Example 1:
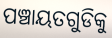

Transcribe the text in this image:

ପଞ୍ଚାୟତଗୁଡିକୁ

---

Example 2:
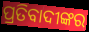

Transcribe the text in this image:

ପ୍ରତିବାଦୀଙ୍କର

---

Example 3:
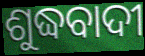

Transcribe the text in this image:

ଶୁଦ୍ଧବାଦୀ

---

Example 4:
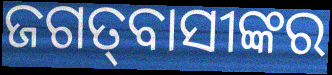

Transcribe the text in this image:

ଜଗତ୍‍ବାସୀଙ୍କର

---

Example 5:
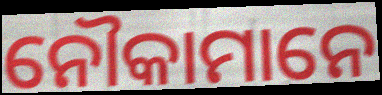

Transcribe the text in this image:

ନୌକାମାନେ